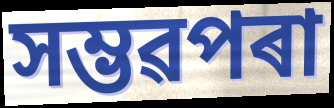
সম্ভৱপৰা